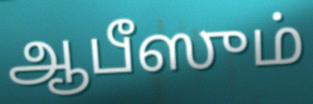
ஆபீஸும்